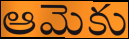
ఆమెకు